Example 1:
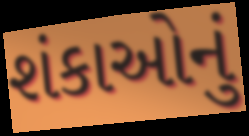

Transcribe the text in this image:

શંકાઓનું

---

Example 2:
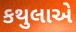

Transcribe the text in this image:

કથુલાએ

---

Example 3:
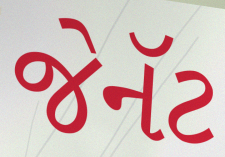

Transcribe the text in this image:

જેનૅટ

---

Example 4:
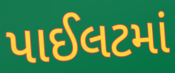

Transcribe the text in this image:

પાઈલટમાં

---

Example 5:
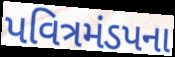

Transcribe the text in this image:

પવિત્રમંડપના